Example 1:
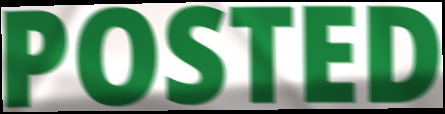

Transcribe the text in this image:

POSTED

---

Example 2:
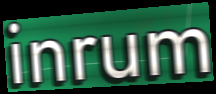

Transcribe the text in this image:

inrum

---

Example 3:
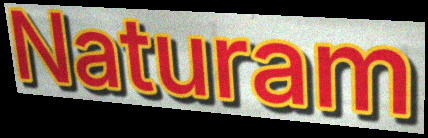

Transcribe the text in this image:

Naturam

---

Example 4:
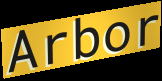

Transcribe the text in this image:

Arbor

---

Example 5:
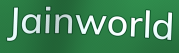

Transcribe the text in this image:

Jainworld